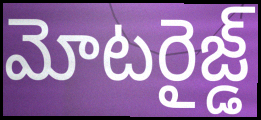
మోటరైజ్డ్